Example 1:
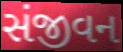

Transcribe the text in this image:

સંજીવન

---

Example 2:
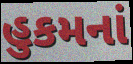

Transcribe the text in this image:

હુકમનાં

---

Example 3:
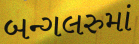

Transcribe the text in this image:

બન્ગલરુમાં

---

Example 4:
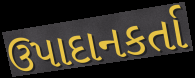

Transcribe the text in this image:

ઉપાદાનકર્તા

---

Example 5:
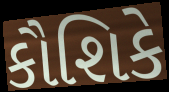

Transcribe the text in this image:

કૌશિકે